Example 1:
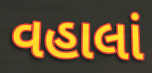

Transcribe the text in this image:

વહાલાં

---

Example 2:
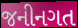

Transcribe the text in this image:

જનીનગત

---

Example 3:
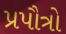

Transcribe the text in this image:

પ્રપૌત્રો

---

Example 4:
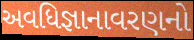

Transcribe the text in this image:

અવધિજ્ઞાનાવરણનો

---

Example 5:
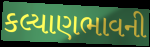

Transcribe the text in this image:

કલ્યાણભાવની